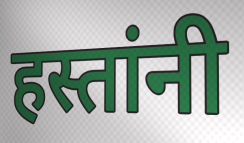
हस्तांनी